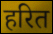
हरित